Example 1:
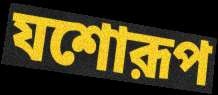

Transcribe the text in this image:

যশোরূপ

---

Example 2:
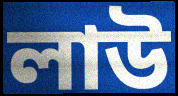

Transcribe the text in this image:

লাউ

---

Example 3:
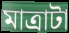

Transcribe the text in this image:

মাত্রাটা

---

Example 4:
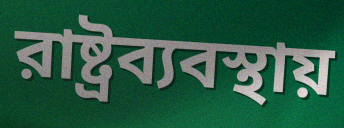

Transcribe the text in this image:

রাষ্ট্রব্যবস্থায়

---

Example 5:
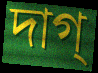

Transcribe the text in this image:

দাগ্